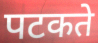
पटकते